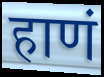
हाणं